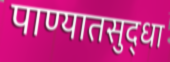
पाण्यातसुद्धा